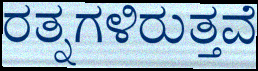
ರತ್ನಗಳಿರುತ್ತವೆ